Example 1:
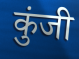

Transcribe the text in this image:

कुंजी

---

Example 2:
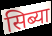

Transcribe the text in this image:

सिब्या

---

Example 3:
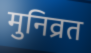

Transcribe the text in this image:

मुनिव्रत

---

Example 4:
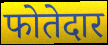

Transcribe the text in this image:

फोतेदार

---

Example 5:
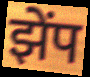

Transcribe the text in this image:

झेंप